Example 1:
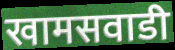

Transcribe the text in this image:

खामसवाडी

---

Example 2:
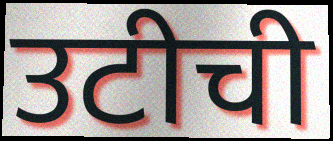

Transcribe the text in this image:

उटीची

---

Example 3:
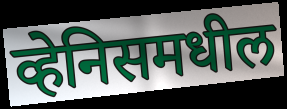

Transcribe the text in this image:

व्हेनिसमधील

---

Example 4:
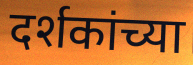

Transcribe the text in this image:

दर्शकांच्या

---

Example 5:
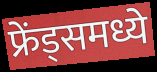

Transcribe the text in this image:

फ्रेंड्समध्ये